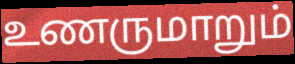
உணருமாறும்